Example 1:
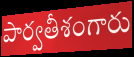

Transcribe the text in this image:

పార్వతీశంగారు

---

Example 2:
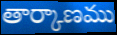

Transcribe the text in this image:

తార్కాణము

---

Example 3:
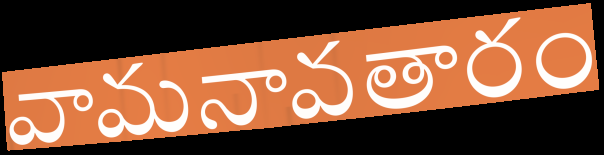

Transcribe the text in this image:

వామనావతారం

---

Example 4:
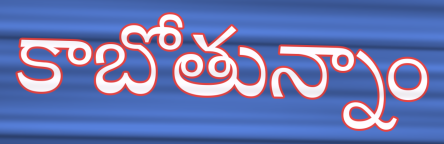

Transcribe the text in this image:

కాబోతున్నాం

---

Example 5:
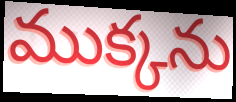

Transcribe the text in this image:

ముక్కను